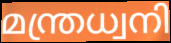
മന്ത്രധ്വനി